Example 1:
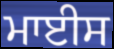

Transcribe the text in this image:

ਮਾਈਸ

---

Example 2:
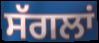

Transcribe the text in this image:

ਸੱਗਲਾਂ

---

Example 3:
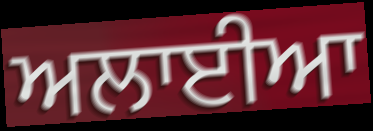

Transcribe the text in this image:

ਅਲਾਈਆ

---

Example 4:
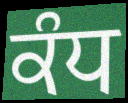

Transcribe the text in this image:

ਕੰਧ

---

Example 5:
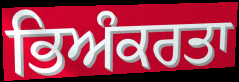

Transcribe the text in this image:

ਭਿਅੰਕਰਤਾ